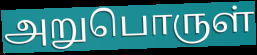
அறுபொருள்